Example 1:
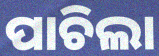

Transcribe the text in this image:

ପାଚିଲା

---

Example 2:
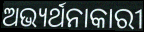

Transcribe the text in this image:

ଅଭ୍ୟର୍ଥନାକାରୀ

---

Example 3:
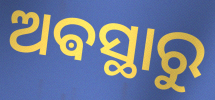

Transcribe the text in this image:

ଅଵସ୍ଥାରୁ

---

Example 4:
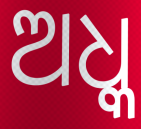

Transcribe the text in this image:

ଅଧ୍କ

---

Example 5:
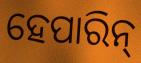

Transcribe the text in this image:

ହେପାରିନ୍